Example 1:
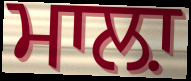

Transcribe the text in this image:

ਮਾਲ਼ਾ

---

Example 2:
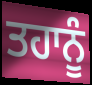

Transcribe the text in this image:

ਤਹਾਨੂੰ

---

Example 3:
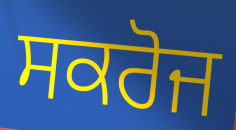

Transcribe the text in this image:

ਸਕਰੋਜ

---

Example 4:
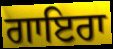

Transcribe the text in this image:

ਗਾਇਰਾ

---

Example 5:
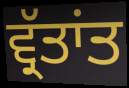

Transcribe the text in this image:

ਵ੍ਰੱਤਾਂਤ